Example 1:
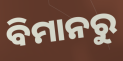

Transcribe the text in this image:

ବିମାନରୁ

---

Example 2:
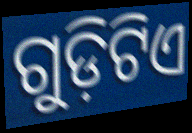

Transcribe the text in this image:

ଗୁଡ଼ିଟିଏ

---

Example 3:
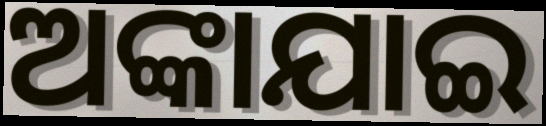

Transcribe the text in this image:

ଅଙ୍କାଯାଇ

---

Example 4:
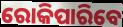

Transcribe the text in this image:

ରୋକିପାରିବେ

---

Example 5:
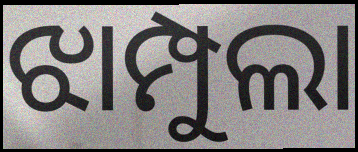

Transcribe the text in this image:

ଝାମ୍ପୁଲା